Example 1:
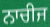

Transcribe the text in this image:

ਨਾਚੀਜ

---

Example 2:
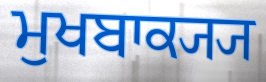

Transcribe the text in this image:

ਮੁਖਬਾਕ੍ਯ੍ਯ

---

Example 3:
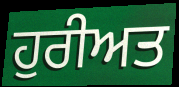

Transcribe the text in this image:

ਹੁਰੀਅਤ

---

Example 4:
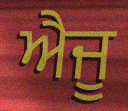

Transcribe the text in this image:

ਐਜੂ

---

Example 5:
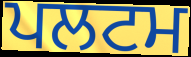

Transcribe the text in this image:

ਪਲਟਮ